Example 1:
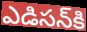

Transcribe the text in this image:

ఎడిసన్‌కి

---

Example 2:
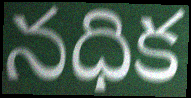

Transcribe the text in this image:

నధిక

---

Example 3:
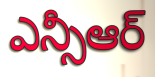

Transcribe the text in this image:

ఎన్సీఆర్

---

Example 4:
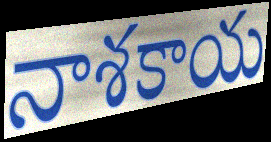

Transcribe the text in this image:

నాశకాయ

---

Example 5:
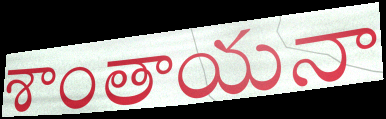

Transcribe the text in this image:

శాంతాయనా